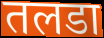
तलडा